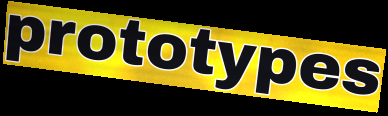
prototypes